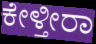
ಕೇಳ್ತೀರಾ